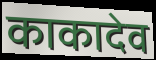
काकादेव